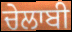
ਚੇਲਾਬੀ